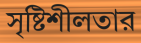
সৃষ্টিশীলতার